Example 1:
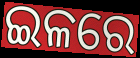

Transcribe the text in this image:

ଇଳରେ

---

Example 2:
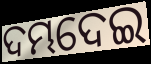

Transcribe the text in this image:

ଦମ୍ଭଦେଇ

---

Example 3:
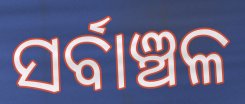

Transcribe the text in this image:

ସର୍ବାଞ୍ଚଳ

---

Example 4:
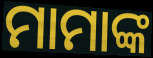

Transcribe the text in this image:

ମାମାଙ୍କ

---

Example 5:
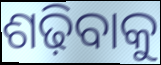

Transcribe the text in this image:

ଶଢ଼ିବାକୁ